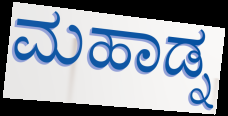
ಮಹಾಡ್ನ